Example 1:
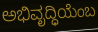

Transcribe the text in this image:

ಅಭಿವೃದ್ಧಿಯೆಂಬ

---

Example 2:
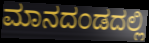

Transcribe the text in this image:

ಮಾನದಂಡದಲ್ಲಿ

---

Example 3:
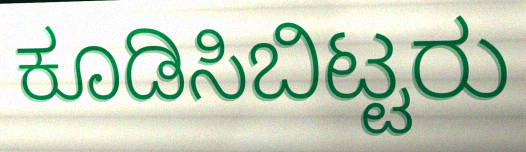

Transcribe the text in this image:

ಕೂಡಿಸಿಬಿಟ್ಟರು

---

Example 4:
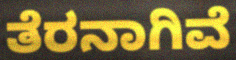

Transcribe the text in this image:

ತೆರನಾಗಿವೆ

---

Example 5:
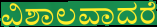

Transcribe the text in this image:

ವಿಶಾಲವಾದರೆ